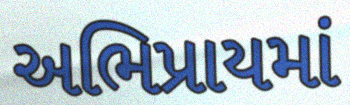
અભિપ્રાયમાં